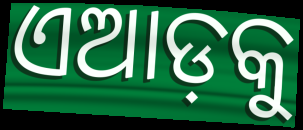
ଏଆଡ଼କୁ